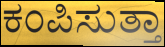
ಕಂಪಿಸುತ್ತಾ